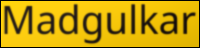
Madgulkar